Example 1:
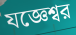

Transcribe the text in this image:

যজ্ঞেশ্বর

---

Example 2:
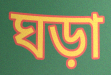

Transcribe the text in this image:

ঘড়া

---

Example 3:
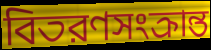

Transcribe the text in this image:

বিতরণসংক্রান্ত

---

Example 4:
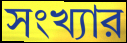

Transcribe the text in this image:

সংখ্যার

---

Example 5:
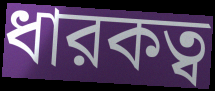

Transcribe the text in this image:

ধারকত্ব